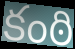
కంఠి